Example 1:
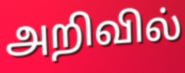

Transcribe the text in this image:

அறிவில்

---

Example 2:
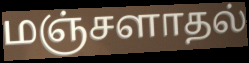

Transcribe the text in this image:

மஞ்சளாதல்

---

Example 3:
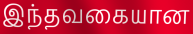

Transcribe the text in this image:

இந்தவகையான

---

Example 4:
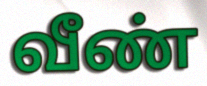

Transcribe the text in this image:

வீண்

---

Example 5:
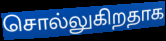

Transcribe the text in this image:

சொல்லுகிறதாக